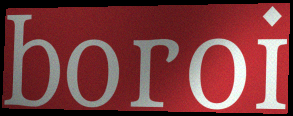
boroi